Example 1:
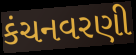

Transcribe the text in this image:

કંચનવરણી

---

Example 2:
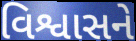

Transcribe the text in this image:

વિશ્વાસને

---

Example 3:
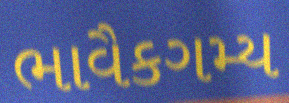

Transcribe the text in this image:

ભાવૈકગમ્ય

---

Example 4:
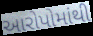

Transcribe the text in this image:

આરોપોમાંથી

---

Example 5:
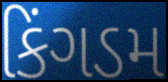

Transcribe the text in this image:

કિંગડમ